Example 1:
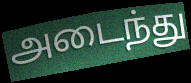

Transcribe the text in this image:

அடைந்து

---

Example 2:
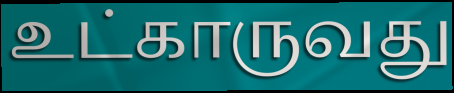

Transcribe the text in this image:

உட்காருவது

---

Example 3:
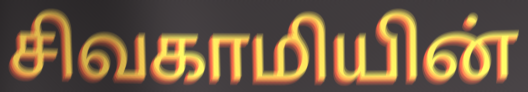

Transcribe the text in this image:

சிவகாமியின்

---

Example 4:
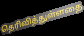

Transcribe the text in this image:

தெரிவித்துள்ளதை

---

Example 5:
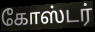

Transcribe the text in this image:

கோஸ்டர்